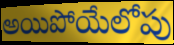
అయిపోయేలోపు